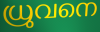
ധ്രുവനെ